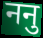
ननु